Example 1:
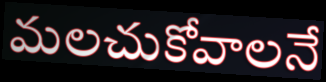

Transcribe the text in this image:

మలచుకోవాలనే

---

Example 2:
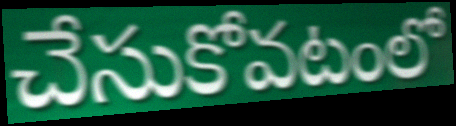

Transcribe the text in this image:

చేసుకోవటంలో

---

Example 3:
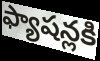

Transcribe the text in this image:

ఫ్యాషన్లకి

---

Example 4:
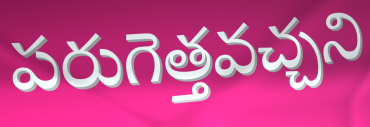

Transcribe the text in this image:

పరుగెత్తవచ్చని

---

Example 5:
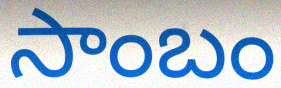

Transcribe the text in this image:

సాంబం